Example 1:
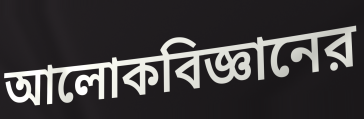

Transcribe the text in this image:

আলোকবিজ্ঞানের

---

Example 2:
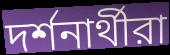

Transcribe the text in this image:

দর্শনার্থীরা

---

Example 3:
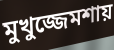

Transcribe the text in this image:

মুখুজ্জেমশায়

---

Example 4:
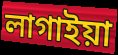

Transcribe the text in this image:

লাগাইয়া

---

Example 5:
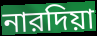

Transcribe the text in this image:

নারদিয়া